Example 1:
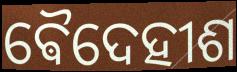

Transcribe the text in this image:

ଵୈଦେହୀଶ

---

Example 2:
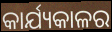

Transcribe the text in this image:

କାର୍ଯ୍ୟକାଳର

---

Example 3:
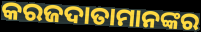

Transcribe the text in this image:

କରଜଦାତାମାନଙ୍କର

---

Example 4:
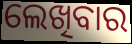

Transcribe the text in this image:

ଲେଖିବାର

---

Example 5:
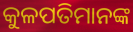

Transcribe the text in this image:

କୁଳପତିମାନଙ୍କ